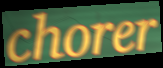
chorer